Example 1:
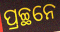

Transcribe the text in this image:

ପ୍ରଚ୍ଛନେ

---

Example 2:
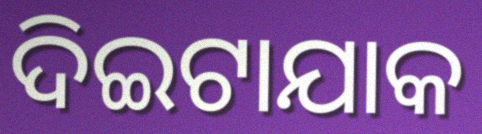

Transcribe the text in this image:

ଦିଇଟାଯାକ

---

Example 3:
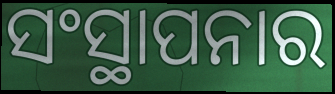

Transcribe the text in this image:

ସଂସ୍ଥାପନାର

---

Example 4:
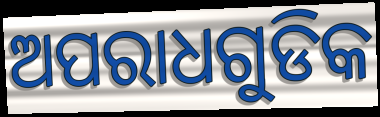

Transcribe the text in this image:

ଅପରାଧଗୁଡିକ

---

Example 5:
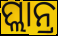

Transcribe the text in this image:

ପ୍ଲାନ୍ର